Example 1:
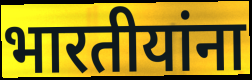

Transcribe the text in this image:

भारतीयांना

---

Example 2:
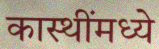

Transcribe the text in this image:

कास्थींमध्ये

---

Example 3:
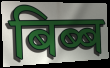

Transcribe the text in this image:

बिब्ब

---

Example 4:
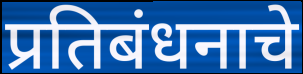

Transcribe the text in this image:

प्रतिबंधनाचे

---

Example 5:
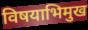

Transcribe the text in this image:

विषयाभिमुख